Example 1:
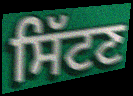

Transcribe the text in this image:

ਸਿੱਟਣ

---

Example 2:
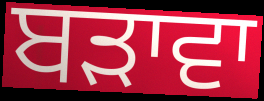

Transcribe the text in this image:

ਬੜਾਵਾ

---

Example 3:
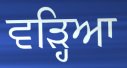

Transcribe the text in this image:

ਵੜ੍ਹਿਆ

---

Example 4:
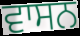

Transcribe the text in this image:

ਵਾਸਨ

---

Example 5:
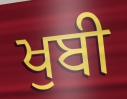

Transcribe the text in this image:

ਖੁਬੀ